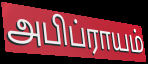
அபிப்ராயம்